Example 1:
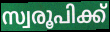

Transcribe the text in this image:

സ്വരൂപിക്ക്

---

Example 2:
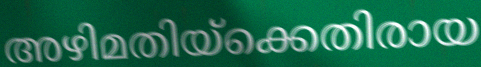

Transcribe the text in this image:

അഴിമതിയ്ക്കെതിരായ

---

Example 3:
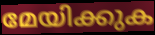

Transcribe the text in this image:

മേയിക്കുക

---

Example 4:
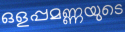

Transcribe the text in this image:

ഒളപ്പമണ്ണയുടെ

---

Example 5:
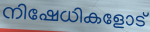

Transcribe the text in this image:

നിഷേധികളോട്